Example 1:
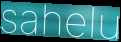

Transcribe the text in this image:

sahelu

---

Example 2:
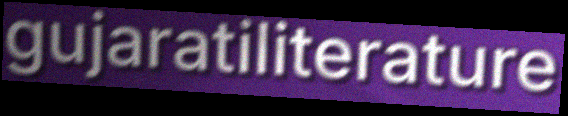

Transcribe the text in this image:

gujaratiliterature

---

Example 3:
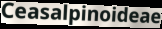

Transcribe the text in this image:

Ceasalpinoideae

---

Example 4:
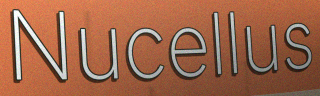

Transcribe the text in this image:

Nucellus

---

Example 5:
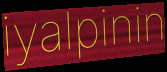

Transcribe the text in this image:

iyalpinin